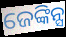
ଜେଙ୍କିନ୍ସ